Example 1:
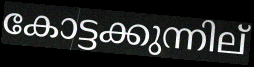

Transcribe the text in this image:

കോട്ടക്കുന്നില്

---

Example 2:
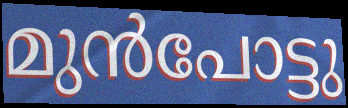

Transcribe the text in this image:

മുൻപോട്ടു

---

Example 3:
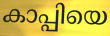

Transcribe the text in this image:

കാപ്പിയെ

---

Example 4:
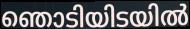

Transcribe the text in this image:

ഞൊടിയിടയിൽ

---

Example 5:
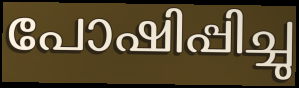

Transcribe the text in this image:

പോഷിപ്പിച്ചു